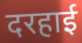
दरहाई